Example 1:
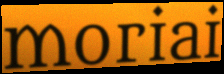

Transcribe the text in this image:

moriai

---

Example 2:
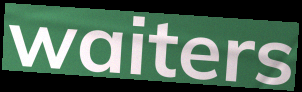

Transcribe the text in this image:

waiters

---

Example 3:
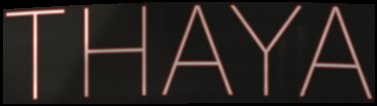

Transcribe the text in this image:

THAYA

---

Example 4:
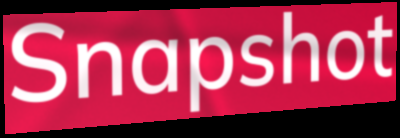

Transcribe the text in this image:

Snapshot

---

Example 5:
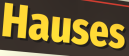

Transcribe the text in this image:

Hauses